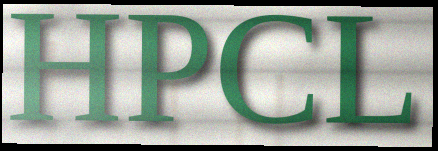
HPCL